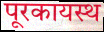
पूरकायस्थ